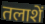
तलाशें